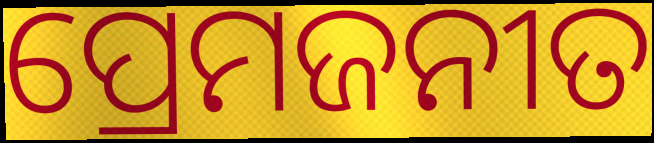
ପ୍ରେମଜନୀତ